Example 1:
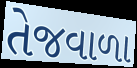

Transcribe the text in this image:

તેજવાળા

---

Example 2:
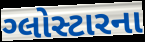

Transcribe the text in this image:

ગ્લોસ્ટારના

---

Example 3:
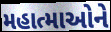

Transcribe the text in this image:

મહાત્માઓને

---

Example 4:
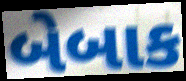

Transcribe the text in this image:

બેબાક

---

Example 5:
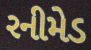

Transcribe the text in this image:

રનીમેડ